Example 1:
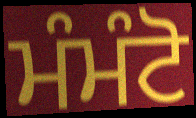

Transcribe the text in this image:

ਮੰਮੰਟੋ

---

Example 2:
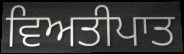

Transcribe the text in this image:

ਵਿਅਤੀਪਾਤ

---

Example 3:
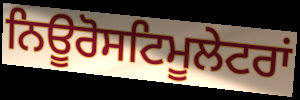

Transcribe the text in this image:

ਨਿਊਰੋਸਟਿਮੂਲੇਟਰਾਂ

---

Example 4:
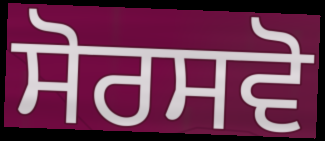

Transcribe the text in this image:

ਸੋਰਸਵੋ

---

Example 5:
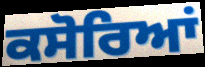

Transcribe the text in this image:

ਕਸੋਰਿਆਂ